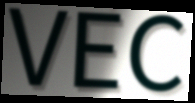
VEC